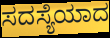
ಸದಸ್ಯೆಯಾದ